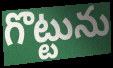
గొట్టును